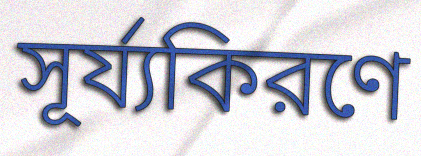
সূর্য্যকিরণে